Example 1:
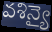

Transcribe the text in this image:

వశిన్యై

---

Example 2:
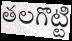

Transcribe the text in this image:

తలగొట్టి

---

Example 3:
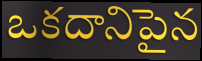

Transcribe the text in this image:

ఒకదానిపైన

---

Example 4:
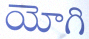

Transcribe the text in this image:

యోగి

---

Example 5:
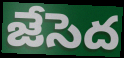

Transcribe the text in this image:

జేసెద